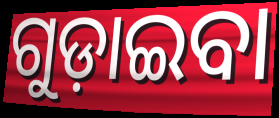
ଗୁଡ଼ାଇବା